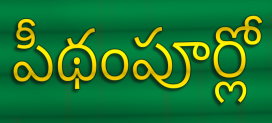
పీథంపూర్లో